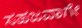
ಸಹಜವಾಗೇ